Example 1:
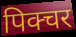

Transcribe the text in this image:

पिक्चर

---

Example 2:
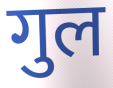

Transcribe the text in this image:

गुल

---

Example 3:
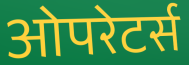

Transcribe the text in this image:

ओपरेटर्स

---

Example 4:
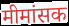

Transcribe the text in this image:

मीमांसक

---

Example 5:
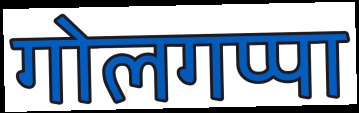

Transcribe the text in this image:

गोलगप्पा